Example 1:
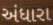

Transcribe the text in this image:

અંધારા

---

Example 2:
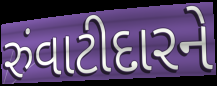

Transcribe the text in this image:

રુંવાટીદારને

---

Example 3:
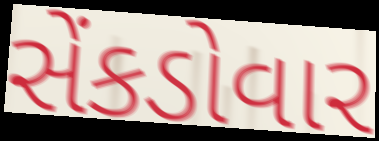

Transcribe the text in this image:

સેંકડોવાર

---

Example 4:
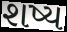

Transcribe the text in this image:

શષ્ય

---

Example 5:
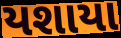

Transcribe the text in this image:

યશાયા